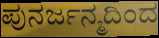
ಪುನರ್ಜನ್ಮದಿಂದ